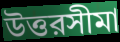
উত্তরসীমা